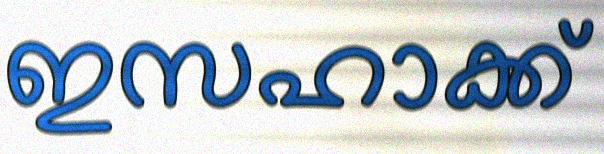
ഇസഹാക്ക്